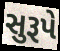
સુરૂપે